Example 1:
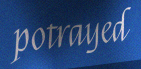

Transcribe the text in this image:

potrayed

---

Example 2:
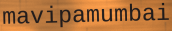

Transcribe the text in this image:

mavipamumbai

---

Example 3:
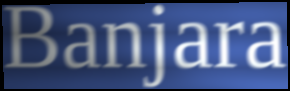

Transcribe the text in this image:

Banjara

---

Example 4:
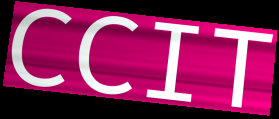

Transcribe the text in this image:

CCIT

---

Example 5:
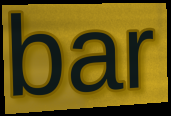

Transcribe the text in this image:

bar